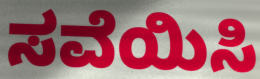
ಸವೆಯಿಸಿ